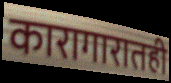
कारागारातही